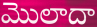
మొలాదా